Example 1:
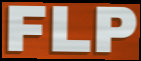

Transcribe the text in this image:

FLP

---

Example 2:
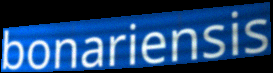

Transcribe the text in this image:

bonariensis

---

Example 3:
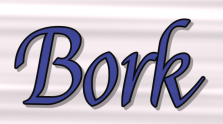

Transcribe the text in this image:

Bork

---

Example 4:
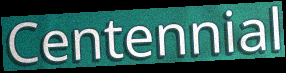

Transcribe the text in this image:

Centennial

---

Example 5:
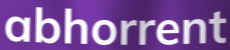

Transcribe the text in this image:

abhorrent